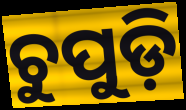
ଚୁପୁଡ଼ି